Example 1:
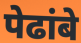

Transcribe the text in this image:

पेढांबे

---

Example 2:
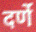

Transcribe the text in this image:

दर्णे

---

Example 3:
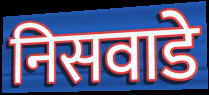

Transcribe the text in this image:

निसवाडे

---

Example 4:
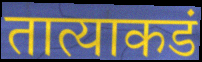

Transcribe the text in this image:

तात्याकडं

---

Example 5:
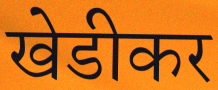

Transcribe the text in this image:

खेडीकर